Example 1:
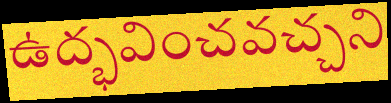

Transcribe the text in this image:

ఉద్భవించవచ్చని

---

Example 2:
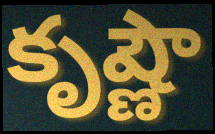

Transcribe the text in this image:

కృష్ణౌ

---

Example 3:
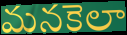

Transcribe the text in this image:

మనకెలా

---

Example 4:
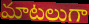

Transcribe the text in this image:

మాటలుగా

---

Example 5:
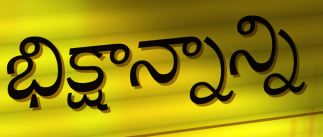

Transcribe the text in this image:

భిక్షాన్నాన్ని